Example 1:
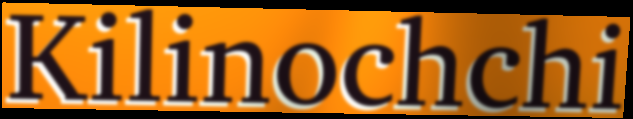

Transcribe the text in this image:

Kilinochchi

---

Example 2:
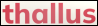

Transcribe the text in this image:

thallus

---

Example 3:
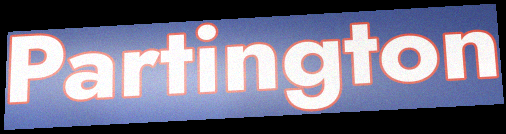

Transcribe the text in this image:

Partington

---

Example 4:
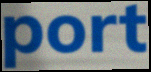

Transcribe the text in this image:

port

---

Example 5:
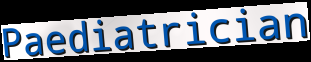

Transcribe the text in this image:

Paediatrician